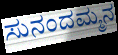
ಸುನಂದಮ್ಮನ